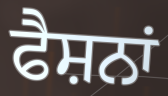
ਫੈਸ਼ਨਾਂ